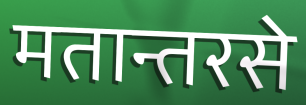
मतान्तरसे